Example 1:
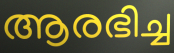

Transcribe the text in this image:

ആരഭിച്ച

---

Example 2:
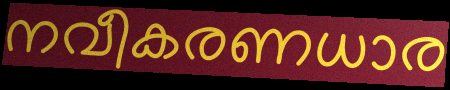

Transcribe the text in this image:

നവീകരണധാര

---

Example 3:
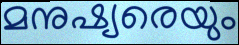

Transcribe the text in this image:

മനുഷ്യരെയും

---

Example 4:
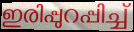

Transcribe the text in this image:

ഇരിപ്പുറപ്പിച്ച്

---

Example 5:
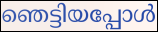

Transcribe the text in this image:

ഞെട്ടിയപ്പോൾ